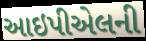
આઇપીએલની